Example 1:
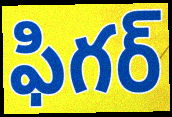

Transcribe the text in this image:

ఫిగర్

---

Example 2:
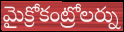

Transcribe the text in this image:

మైక్రోకంట్రోలర్ను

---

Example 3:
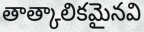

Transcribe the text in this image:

తాత్కాలికమైనవి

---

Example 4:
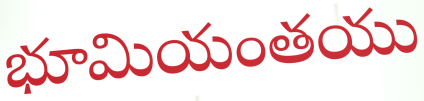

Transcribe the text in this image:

భూమియంతయు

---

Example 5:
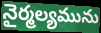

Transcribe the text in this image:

నైర్మల్యమును